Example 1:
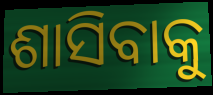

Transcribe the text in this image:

ଶାସିବାକୁ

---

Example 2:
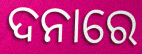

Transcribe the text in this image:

ଦନାରେ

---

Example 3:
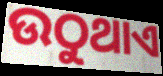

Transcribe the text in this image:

ଉଠୁଥାଏ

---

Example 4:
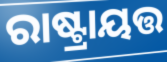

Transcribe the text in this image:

ରାଷ୍ଟ୍ରାୟତ୍ତ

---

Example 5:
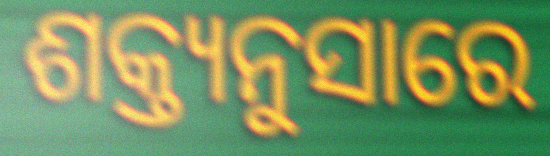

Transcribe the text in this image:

ଶକ୍ତ୍ୟନୁସାରେ